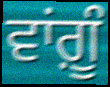
ਵਾਂਗ਼ੂੰ